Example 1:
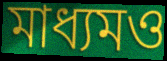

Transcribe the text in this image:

মাধ্যমও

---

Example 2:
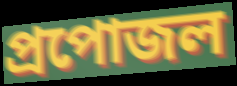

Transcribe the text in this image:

প্রপোজল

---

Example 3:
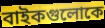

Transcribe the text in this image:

বাইকগুলোকে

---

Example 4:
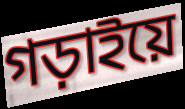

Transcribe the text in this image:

গড়াইয়ে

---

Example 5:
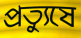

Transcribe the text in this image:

প্রত্যুষে